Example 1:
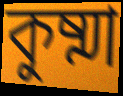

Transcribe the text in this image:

কুষ্মা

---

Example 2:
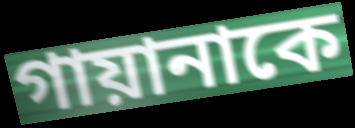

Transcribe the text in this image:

গায়ানাকে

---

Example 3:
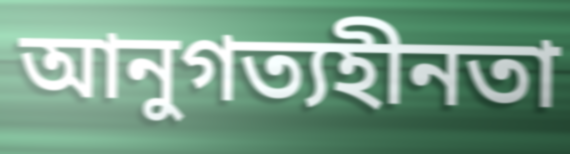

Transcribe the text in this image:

আনুগত্যহীনতা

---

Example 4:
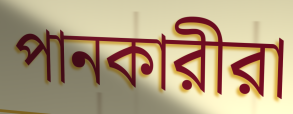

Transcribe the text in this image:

পানকারীরা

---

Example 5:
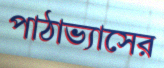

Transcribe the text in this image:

পাঠাভ্যাসের